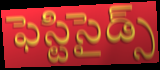
ఫెస్టిసైడ్స్